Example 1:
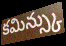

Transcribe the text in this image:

కమిన్స్కు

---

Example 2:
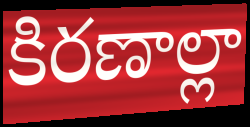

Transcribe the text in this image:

కిరణాల్లా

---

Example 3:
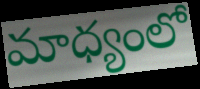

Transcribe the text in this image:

మాధ్యంలో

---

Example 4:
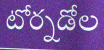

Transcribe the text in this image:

టోర్నడోల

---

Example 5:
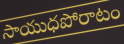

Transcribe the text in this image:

సాయుధపోరాటం